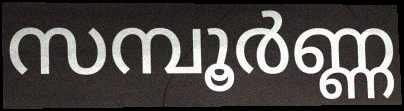
സമ്പൂർണ്ണ